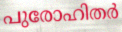
പുരോഹിതർ